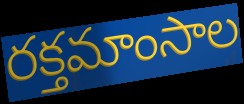
రక్తమాంసాల